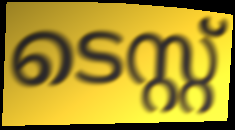
ടെസ്റ്റ്